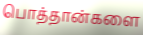
பொத்தான்களை